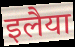
इलैया